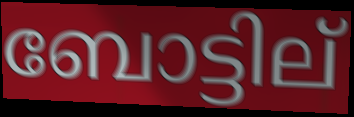
ബോട്ടില്